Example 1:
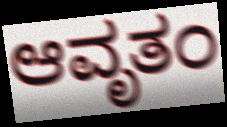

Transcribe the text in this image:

ಆವೃತಂ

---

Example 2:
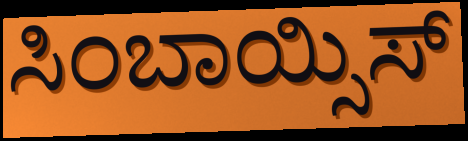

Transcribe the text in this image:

ಸಿಂಬಾಯ್ಸಿಸ್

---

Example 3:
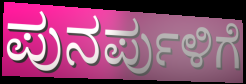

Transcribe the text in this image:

ಪುನರ್ಪುಳಿಗೆ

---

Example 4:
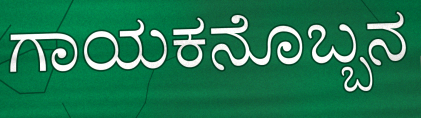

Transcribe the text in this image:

ಗಾಯಕನೊಬ್ಬನ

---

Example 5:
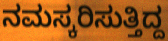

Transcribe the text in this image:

ನಮಸ್ಕರಿಸುತ್ತಿದ್ದ